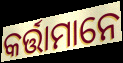
କର୍ତ୍ତାମାନେ